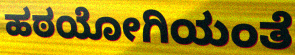
ಹಠಯೋಗಿಯಂತೆ